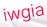
iwgia